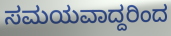
ಸಮಯವಾದ್ದರಿಂದ